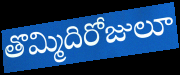
తొమ్మిదిరోజులూ